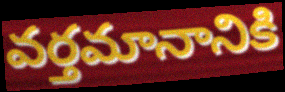
వర్తమానానికి